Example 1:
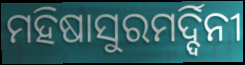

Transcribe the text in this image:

ମହିଷାସୁରମର୍ଦ୍ଦିନୀ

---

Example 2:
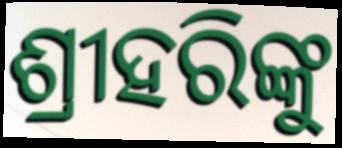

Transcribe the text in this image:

ଶ୍ରୀହରିଙ୍କୁ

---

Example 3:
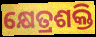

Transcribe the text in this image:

କ୍ଷେତ୍ରଶକ୍ତି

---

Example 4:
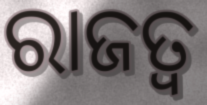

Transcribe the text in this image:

ରାଜତ୍ଵ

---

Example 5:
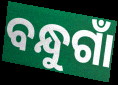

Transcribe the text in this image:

ବନ୍ଧୁଗାଁ